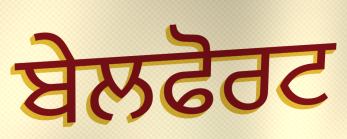
ਬੇਲਫੋਰਟ